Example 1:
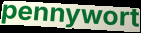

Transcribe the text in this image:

pennywort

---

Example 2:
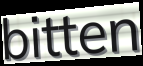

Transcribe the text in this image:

bitten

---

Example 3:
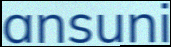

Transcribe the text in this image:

ansuni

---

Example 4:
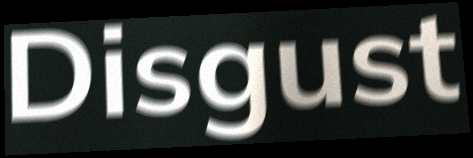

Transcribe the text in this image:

Disgust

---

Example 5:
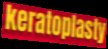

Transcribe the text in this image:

keratoplasty